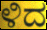
ಳಿದ